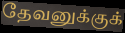
தேவனுக்குக்